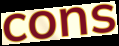
cons